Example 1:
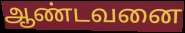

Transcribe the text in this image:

ஆண்டவனை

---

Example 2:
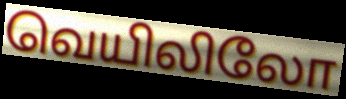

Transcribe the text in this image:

வெயிலிலோ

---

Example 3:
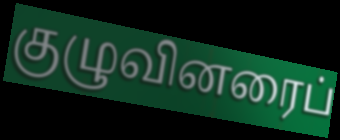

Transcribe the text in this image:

குழுவினரைப்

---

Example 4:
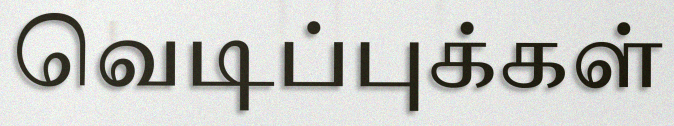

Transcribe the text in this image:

வெடிப்புக்கள்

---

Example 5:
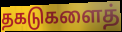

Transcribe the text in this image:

தகடுகளைத்